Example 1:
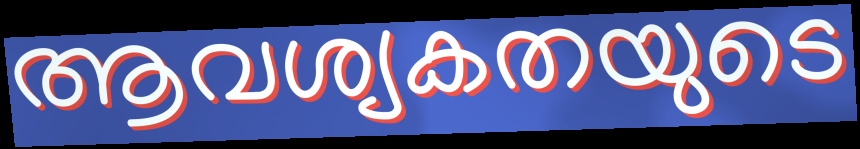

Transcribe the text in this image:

ആവശ്യകതയുടെ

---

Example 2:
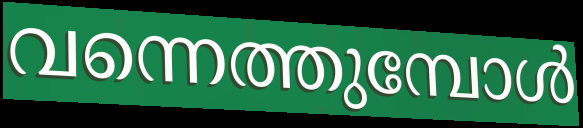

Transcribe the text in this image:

വന്നെത്തുമ്പോൾ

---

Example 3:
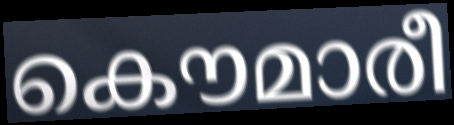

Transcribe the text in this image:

കൌമാരീ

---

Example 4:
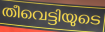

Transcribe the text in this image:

തീവെട്ടിയുടെ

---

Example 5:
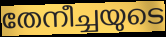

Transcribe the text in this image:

തേനീച്ചയുടെ